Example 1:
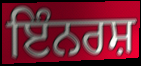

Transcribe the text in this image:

ਇੰਨਰਸ਼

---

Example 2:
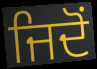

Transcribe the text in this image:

ਜਿਦੋਂ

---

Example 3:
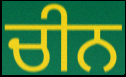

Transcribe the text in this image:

ਚੀਨ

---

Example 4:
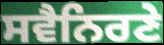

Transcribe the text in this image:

ਸਵੈਨਿਰਣੇ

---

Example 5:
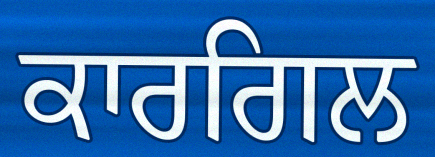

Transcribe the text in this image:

ਕਾਰਗਿਲ